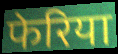
फेरिया